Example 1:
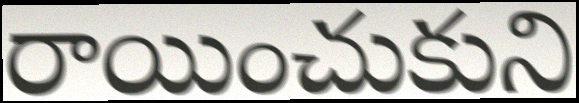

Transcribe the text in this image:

రాయించుకుని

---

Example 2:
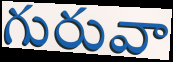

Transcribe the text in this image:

గురువా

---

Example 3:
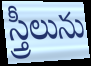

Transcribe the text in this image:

స్త్రీలును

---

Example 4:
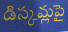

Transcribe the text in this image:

డిస్కమ్లపై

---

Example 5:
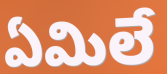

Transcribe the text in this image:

ఏమిలే